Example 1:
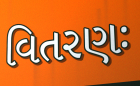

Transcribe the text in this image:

વિતરણઃ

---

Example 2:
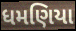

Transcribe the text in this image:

ધમણિયા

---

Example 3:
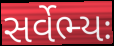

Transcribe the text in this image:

સર્વેભ્યઃ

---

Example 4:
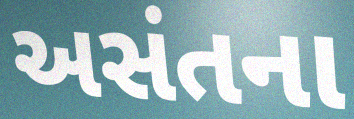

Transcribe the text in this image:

અસંતના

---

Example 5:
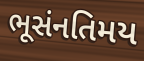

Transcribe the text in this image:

ભૂસંનતિમય